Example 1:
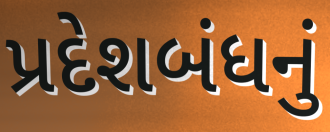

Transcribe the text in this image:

પ્રદેશબંધનું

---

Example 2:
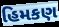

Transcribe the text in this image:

હિમકણ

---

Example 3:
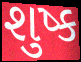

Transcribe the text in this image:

શુષ્ક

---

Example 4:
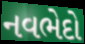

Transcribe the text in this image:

નવભેદો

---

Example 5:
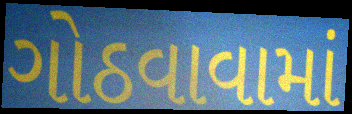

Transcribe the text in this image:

ગોઠવાવામાં